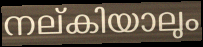
നല്‌കിയാലും